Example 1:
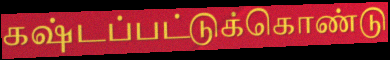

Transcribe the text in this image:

கஷ்டப்பட்டுக்கொண்டு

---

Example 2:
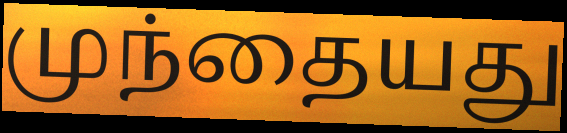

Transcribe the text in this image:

முந்தையது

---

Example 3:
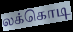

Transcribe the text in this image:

லக்கொடி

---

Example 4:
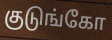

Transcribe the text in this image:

குடுங்கோ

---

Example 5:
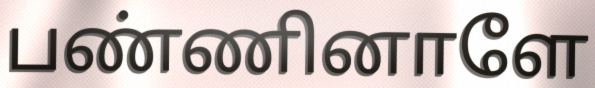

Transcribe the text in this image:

பண்ணினாளே